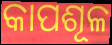
କାପଶୂଳ